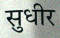
सुधीर